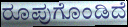
ರೂಪುಗೊಂಡಿದೆ